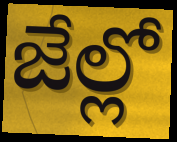
జేల్లో